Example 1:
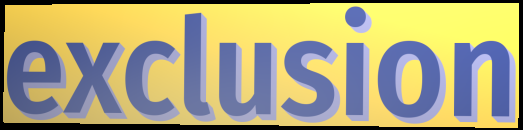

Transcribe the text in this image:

exclusion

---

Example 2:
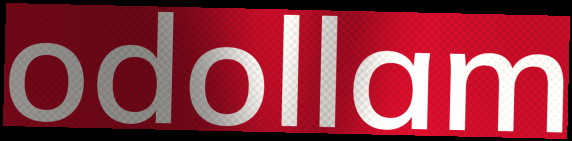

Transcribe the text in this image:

odollam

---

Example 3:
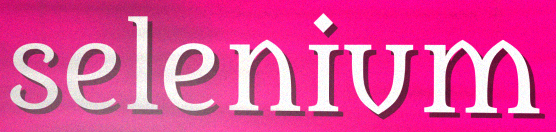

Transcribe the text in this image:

selenium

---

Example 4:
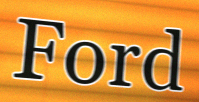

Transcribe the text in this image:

Ford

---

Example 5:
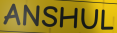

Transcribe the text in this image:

ANSHUL